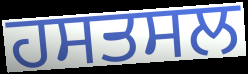
ਹਸਤਸਲ